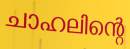
ചാഹലിന്റെ